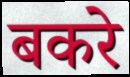
बकरे